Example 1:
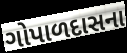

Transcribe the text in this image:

ગોપાળદાસના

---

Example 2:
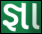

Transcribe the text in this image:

જ્ઞા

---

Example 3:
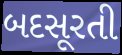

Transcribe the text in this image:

બદસૂરતી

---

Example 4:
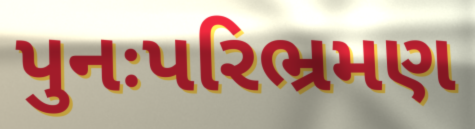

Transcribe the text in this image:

પુનઃપરિભ્રમણ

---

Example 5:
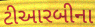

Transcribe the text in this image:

ટીઆરબીના